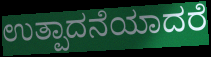
ಉತ್ಪಾದನೆಯಾದರೆ